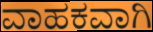
ವಾಹಕವಾಗಿ